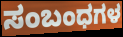
ಸಂಬಂಧಗಳ